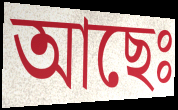
আছেঃ